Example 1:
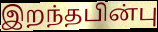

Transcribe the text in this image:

இறந்தபின்பு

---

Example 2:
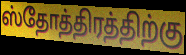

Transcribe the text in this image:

ஸ்தோத்திரத்திற்கு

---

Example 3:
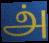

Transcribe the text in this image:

அ்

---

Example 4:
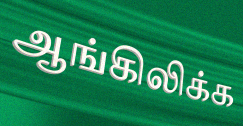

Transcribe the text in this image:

ஆங்கிலிக்க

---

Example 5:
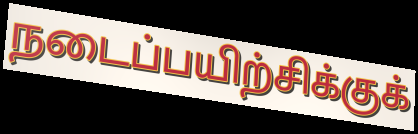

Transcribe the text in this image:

நடைப்பயிற்சிக்குக்